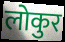
लोकुर